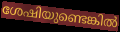
ശേഷിയുണ്ടെങ്കിൽ